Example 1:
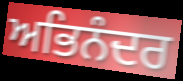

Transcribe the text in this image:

ਅਭਿਨੰਦਰ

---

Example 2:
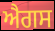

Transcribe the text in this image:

ਐਗਸ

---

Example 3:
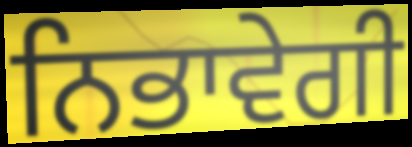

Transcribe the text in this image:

ਨਿਭਾਵੇਗੀ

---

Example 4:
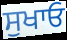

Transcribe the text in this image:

ਸੁਖਾਓ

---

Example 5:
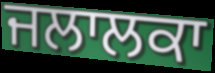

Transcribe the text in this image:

ਜਲਾਲਕਾ